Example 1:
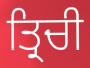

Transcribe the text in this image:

ਤ੍ਰਿਚੀ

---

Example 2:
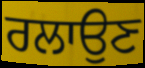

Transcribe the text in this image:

ਰਲਾਉਣ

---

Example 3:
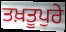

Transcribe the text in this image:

ਤਖ਼ਤੂਪੁਰੇ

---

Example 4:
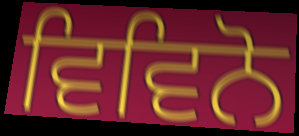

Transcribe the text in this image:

ਵਿਵਿਨੋ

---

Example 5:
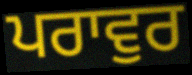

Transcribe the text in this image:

ਪਰਾਵੁਰ